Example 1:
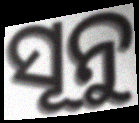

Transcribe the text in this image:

ସୂନୁ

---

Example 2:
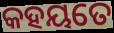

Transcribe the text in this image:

କହୟତେ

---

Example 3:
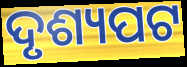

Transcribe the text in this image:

ଦୃଶ୍ୟପଟ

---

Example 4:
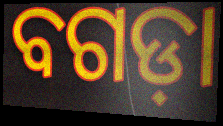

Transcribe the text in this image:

ବଗଡ଼ା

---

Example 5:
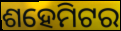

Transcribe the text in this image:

ଶହେମିଟର